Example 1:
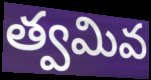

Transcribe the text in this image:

త్వమివ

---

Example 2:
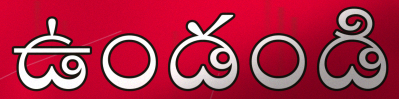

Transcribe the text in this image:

ఉండండి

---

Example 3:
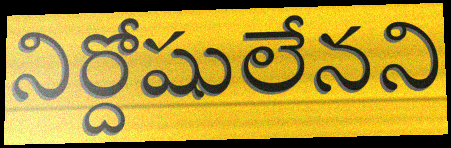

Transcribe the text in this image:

నిర్దోషులేనని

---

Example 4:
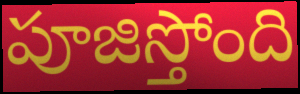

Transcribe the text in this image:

పూజిస్తోంది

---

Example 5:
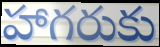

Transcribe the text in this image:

హాగరుకు